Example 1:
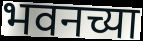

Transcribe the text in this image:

भवनच्या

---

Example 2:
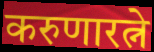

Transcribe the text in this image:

करुणारत्ने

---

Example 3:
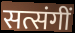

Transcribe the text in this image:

सत्संगीं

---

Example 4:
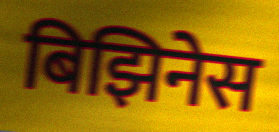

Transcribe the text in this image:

बिझिनेस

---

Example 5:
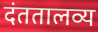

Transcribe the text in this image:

दंततालव्य